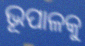
ଭୂପାଳକୁ